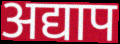
अद्याप